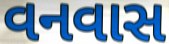
વનવાસ